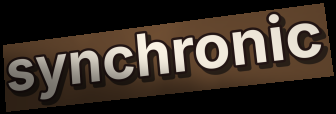
synchronic